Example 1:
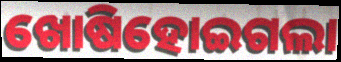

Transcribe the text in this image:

ଖୋଷିହୋଇଗଲା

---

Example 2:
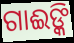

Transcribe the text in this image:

ଗାଈଙ୍କି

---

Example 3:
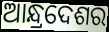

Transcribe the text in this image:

ଆନ୍ଧ୍ରଦେଶର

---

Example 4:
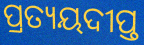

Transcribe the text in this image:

ପ୍ରତ୍ୟୟଦୀପ୍ତ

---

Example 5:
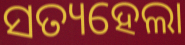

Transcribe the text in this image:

ସତ୍ୟହେଲା